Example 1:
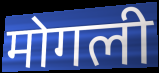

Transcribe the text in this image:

मोगली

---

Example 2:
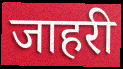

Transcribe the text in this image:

जाहरी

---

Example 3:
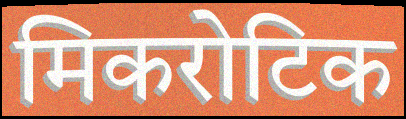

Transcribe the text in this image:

मिकरोटिक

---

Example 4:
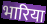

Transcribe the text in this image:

भारिया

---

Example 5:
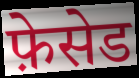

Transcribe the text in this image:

फ़ेसेड